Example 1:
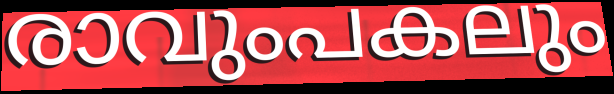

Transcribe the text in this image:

രാവുംപകലും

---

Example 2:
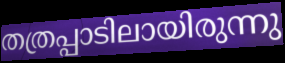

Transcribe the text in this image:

തത്രപ്പാടിലായിരുന്നു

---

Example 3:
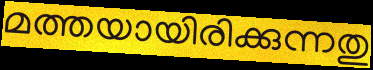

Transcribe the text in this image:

മത്തയായിരിക്കുന്നതു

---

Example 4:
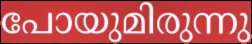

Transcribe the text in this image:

പോയുമിരുന്നു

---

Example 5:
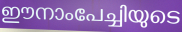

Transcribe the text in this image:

ഈനാംപേച്ചിയുടെ